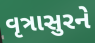
વૃત્રાસુરને